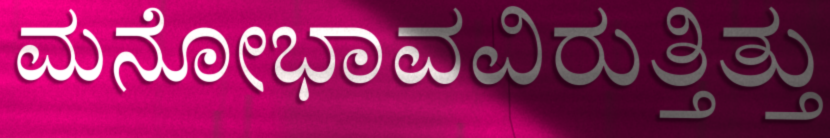
ಮನೋಭಾವವಿರುತ್ತಿತ್ತು